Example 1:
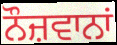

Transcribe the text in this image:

ਨੌਜ਼ਵਾਨਾਂ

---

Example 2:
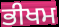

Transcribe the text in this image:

ਭੀਖਮ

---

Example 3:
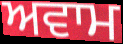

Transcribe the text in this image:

ਅਵਾਮ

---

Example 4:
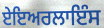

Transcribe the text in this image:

ਏਇਅਰਲਾਇੰਸ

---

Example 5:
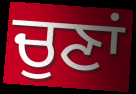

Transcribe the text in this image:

ਚੁਣਾਂ